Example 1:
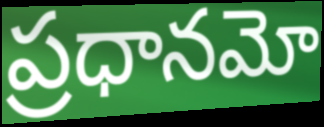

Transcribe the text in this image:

ప్రధానమో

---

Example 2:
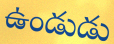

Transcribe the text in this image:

ఉండుడు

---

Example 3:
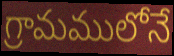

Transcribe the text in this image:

గ్రామములోనే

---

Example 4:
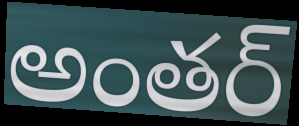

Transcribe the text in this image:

అంతర్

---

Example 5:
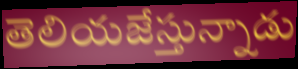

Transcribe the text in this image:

తెలియజేస్తున్నాడు